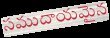
సముదాయమైన